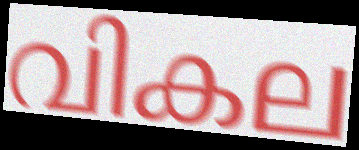
വികല